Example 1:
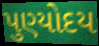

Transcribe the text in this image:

પુણ્યોદય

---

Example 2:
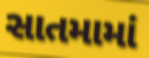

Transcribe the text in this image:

સાતમામાં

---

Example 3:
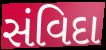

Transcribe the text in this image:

સંવિદા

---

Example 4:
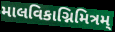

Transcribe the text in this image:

માલવિકાગ્નિમિત્રમ્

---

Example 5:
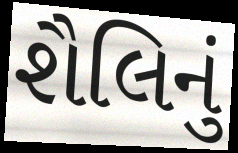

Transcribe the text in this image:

શૈલિનું